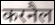
करनैल